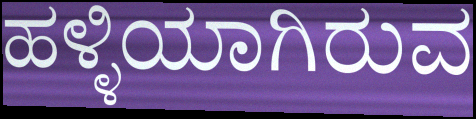
ಹಳ್ಳಿಯಾಗಿರುವ